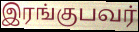
இரங்குபவர்